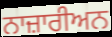
ਨਾਜ਼ਾਰੀਅਨ